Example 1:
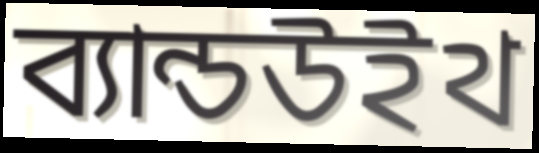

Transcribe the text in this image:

ব্যান্ডউইথ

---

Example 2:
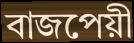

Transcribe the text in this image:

বাজপেয়ী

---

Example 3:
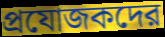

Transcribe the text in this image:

প্রযোজকদের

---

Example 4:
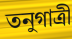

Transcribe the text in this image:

তনুগাত্রী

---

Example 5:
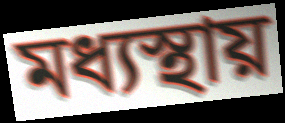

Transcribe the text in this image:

মধ্যস্থায়